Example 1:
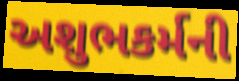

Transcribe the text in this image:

અશુભકર્મની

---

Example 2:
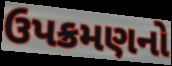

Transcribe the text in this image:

ઉપક્રમણનો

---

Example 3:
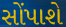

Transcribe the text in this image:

સોંપાશે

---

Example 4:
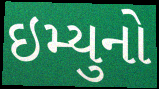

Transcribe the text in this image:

ઇમ્યુનો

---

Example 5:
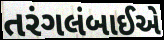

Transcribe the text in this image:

તરંગલંબાઈએ